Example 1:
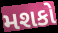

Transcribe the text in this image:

મશકો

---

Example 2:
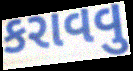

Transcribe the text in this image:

કરાવવુ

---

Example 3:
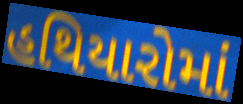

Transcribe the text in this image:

હથિયારોમાં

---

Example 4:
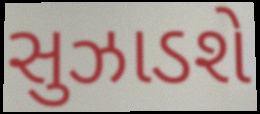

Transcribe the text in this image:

સુઝાડશે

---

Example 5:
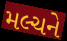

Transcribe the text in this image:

મલ્ચને